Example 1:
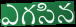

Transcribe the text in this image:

ఎగసిన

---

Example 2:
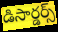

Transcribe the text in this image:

డిసార్డర్స్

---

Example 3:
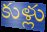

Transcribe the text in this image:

కుళ్లు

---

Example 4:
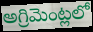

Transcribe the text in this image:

అగ్రిమెంట్లలో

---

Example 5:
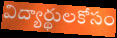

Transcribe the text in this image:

విద్యార్థులకోసం